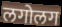
लगोलग